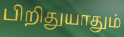
பிறிதுயாதும்